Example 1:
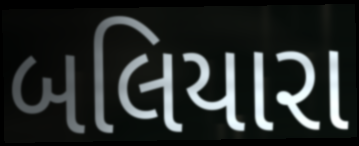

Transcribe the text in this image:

બલિયારા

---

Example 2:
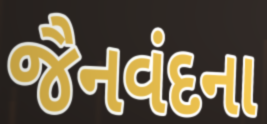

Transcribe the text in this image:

જૈનવંદના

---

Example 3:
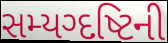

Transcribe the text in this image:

સમ્યગ્દષ્ટિની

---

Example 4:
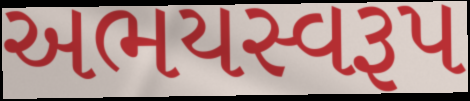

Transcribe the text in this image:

અભયસ્વરૂપ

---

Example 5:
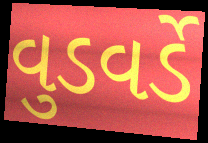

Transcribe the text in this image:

વુડવર્ડે